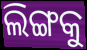
ଲିଙ୍ଗକୁ